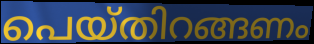
പെയ്തിറങ്ങണം